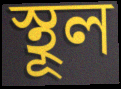
স্থূল